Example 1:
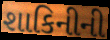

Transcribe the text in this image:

શાકિનીની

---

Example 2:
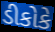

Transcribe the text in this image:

ડીકોકે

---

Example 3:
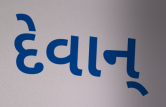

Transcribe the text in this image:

દેવાન્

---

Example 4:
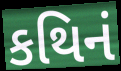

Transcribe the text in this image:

કથિનં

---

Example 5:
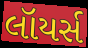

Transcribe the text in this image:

લૉયર્સ